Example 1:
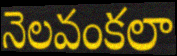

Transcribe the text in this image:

నెలవంకలా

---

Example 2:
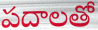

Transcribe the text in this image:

పదాలతో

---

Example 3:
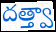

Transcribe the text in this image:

దత్త్వా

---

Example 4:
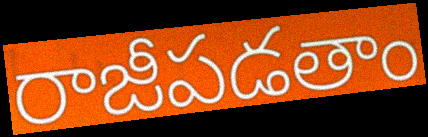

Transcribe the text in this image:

రాజీపడతాం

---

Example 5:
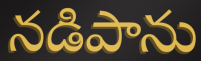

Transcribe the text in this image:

నడిపాను